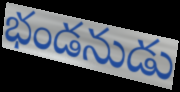
భండనుడు